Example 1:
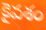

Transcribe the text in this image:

కైవశం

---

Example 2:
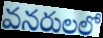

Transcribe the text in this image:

వనరులలో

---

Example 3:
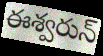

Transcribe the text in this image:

ఈశ్వరున్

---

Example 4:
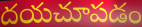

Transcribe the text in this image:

దయచూపడం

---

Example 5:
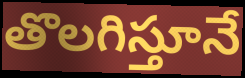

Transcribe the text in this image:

తొలగిస్తూనే